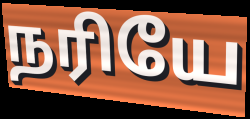
நரியே